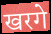
खरगे